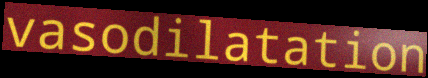
vasodilatation